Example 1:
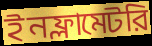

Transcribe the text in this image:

ইনফ্লামেটরি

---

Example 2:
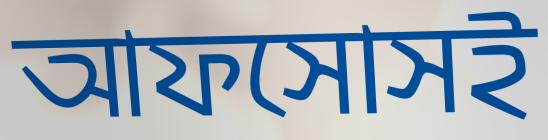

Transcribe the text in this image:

আফসোসই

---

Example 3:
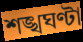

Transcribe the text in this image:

শঙ্খঘণ্টা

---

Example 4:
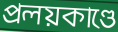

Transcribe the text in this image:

প্রলয়কাণ্ডে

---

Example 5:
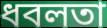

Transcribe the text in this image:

ধবলতা